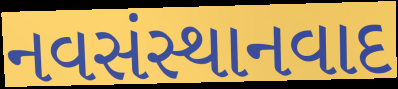
નવસંસ્થાનવાદ